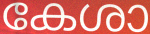
കേശാ